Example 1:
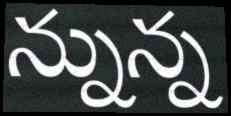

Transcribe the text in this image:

న్నున్న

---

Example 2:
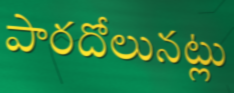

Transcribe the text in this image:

పారదోలునట్లు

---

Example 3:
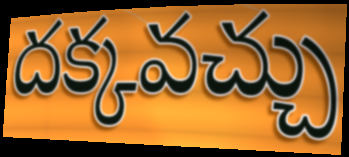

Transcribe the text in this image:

దక్కవచ్చు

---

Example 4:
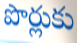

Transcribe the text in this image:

పొర్లుకు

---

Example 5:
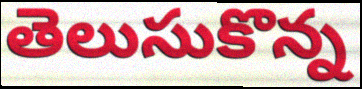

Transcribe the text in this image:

తెలుసుకొన్న